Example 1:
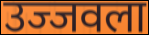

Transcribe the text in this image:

उज्‍जवला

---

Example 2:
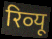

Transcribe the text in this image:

रिव्‍यू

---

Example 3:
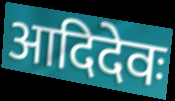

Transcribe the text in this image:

आदिदेवः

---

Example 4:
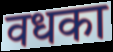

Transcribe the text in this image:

वधका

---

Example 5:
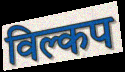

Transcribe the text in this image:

विल्कप